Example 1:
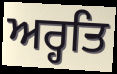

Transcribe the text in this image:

ਅਰ੍ਹਤਿ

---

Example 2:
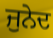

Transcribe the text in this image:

ਜੁਨੇਦ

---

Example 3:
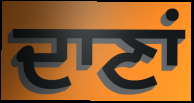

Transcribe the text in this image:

ਦਾਣਾਂ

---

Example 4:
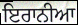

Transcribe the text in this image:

ਇਰਾਨੀਆ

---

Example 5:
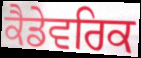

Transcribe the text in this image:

ਕੈਡੇਵਰਿਕ